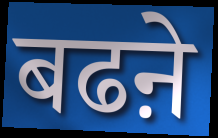
बढऩे